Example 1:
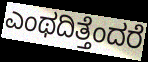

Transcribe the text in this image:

ಎಂಥದಿತ್ತೆಂದರೆ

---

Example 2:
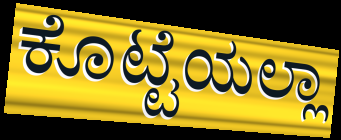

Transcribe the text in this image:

ಕೊಟ್ಟೆಯಲ್ಲಾ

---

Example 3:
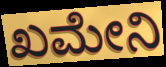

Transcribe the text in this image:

ಖಮೇನಿ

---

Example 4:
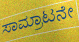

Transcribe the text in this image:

ಸಾಮ್ರಾಟನೇ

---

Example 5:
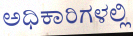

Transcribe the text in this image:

ಅಧಿಕಾರಿಗಳಲ್ಲಿ